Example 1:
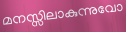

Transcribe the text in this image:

മനസ്സിലാകുന്നുവോ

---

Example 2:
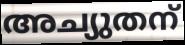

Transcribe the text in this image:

അച്യുതന്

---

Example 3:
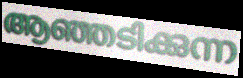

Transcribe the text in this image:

ആഞ്ഞടിക്കുന്ന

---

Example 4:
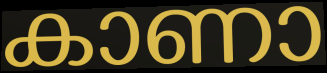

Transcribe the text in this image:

കാണാ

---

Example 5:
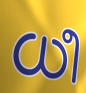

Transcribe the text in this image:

ധീ